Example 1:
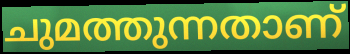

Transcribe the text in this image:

ചുമത്തുന്നതാണ്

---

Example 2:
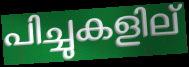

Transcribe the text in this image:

പിച്ചുകളില്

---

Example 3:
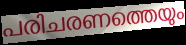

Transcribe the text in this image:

പരിചരണത്തെയും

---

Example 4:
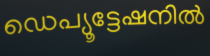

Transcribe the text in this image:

ഡെപ്യൂട്ടേഷനിൽ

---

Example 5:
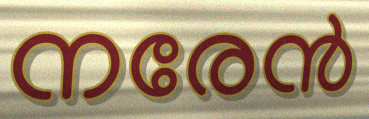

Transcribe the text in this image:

നരേൻ